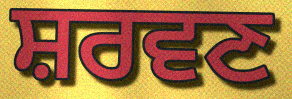
ਸ਼ਰਵਣ